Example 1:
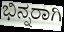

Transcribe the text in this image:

ಭಿನ್ನರಾಗಿ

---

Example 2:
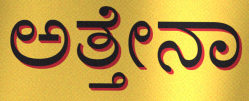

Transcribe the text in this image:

ಅತ್ತೇನಾ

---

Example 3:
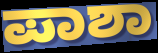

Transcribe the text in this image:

ಪಾಶಾ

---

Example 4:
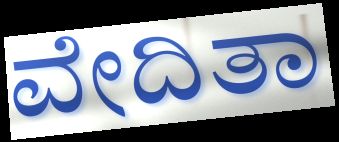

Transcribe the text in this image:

ವೇದಿತಾ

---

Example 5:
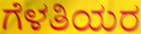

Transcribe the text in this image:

ಗೆಳತಿಯರ